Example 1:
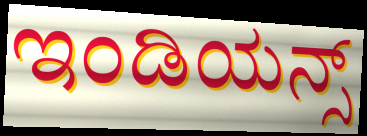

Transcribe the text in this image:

ಇಂಡಿಯನ್ಸ್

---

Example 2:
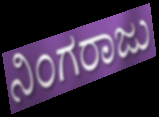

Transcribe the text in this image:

ನಿಂಗರಾಜು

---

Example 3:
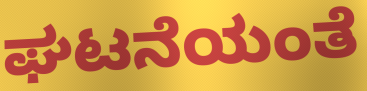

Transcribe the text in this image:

ಘಟನೆಯಂತೆ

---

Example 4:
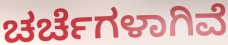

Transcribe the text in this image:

ಚರ್ಚೆಗಳಾಗಿವೆ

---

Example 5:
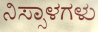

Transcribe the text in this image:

ನಿಸ್ಸಾಳಗಳು